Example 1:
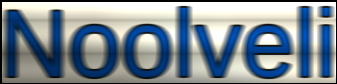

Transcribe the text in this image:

Noolveli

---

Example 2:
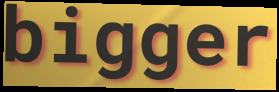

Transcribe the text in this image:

bigger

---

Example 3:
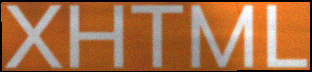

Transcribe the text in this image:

XHTML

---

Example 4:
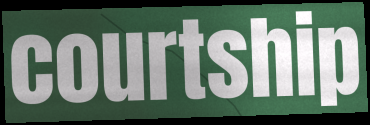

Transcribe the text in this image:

courtship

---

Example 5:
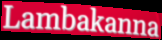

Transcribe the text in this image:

Lambakanna